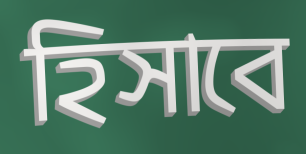
হিসাবে